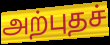
அற்புதச்